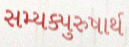
સમ્યક્પુરુષાર્થ